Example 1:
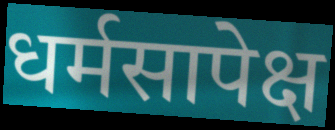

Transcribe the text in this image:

धर्मसापेक्ष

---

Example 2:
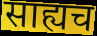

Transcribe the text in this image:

साह्यच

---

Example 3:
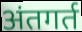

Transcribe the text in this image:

अंतगर्त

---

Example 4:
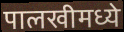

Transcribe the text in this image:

पालखीमध्ये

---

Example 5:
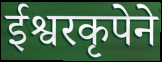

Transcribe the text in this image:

ईश्वरकृपेने